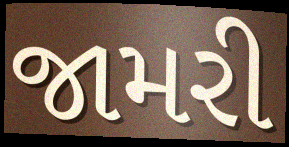
જામરી